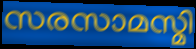
സരസാമസ്മി